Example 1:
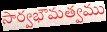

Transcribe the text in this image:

సార్వభౌమత్వము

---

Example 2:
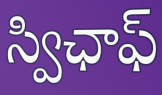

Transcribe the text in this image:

స్విఛాఫ్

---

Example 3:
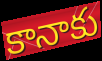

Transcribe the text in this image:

కానాకు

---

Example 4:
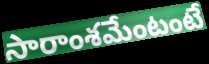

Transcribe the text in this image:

సారాంశమేంటంటే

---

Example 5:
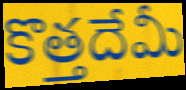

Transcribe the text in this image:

కొత్తదేమీ